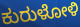
ಕುರುಳೋಳಿ